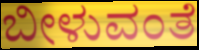
ಬೀಳುವಂತೆ